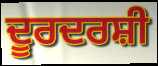
ਦੂਰਦਰਸ਼ੀ